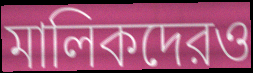
মালিকদেরও